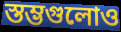
স্তম্ভগুলোও